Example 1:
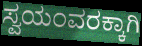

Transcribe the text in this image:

ಸ್ವಯಂವರಕ್ಕಾಗಿ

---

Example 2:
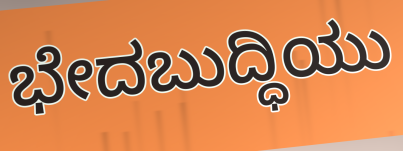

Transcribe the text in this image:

ಭೇದಬುದ್ಧಿಯು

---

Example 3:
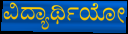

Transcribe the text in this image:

ವಿದ್ಯಾರ್ಥಿಯೋ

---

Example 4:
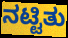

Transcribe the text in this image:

ನಟ್ಟಿತು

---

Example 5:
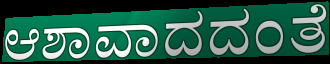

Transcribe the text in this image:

ಆಶಾವಾದದಂತೆ